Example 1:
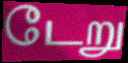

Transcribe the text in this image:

டேறு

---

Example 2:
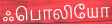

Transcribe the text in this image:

ஃபொலியோ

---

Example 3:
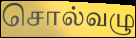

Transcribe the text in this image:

சொல்வழு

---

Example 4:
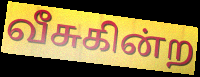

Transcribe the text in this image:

வீசுகின்ற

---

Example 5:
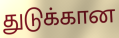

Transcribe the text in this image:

துடுக்கான